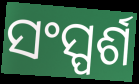
ସଂସ୍ପର୍ଶ